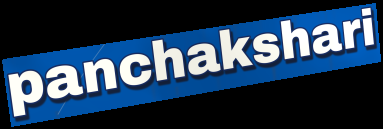
panchakshari